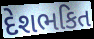
દેશભકિત